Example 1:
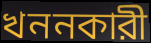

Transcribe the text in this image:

খননকারী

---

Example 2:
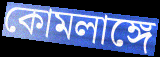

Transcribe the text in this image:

কোমলাঙ্গে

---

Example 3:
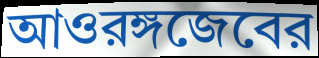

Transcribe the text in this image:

আওরঙ্গজেবের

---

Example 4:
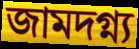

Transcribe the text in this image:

জামদগ্ন্য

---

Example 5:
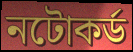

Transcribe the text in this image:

নটোকর্ড